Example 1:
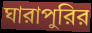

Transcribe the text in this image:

ঘারাপুরির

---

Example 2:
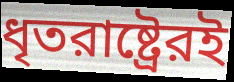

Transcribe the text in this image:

ধৃতরাষ্ট্রেরই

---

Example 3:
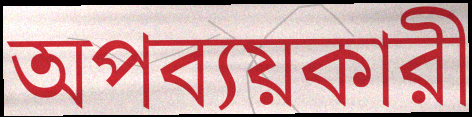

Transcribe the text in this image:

অপব্যয়কারী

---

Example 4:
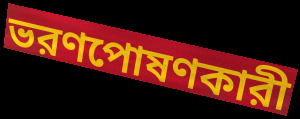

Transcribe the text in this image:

ভরণপোষণকারী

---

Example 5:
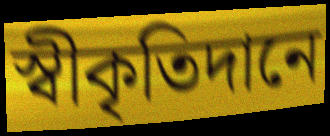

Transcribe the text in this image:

স্বীকৃতিদানে